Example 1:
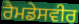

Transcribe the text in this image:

ਰੈਮਡੇਸਵੀਰ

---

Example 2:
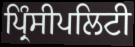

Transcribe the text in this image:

ਪ੍ਰਿੰਸੀਪਲਿਟੀ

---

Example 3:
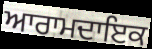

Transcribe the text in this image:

ਆਰਾਮਦਾਇਕ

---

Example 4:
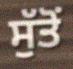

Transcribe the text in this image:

ਸੁੱਤੋਂ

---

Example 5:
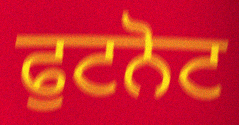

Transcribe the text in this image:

ਫੁਟਨੋਟ